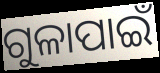
ଗୁଳାପାଇଁ